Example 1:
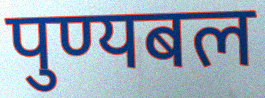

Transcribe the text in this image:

पुण्यबल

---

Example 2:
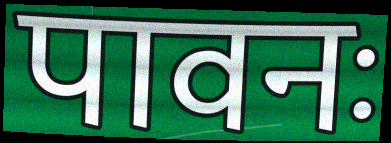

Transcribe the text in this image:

पावनः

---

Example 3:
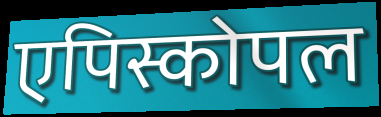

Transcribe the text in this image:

एपिस्कोपल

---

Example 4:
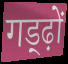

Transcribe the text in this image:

गड्‌ढ़ों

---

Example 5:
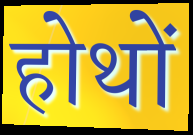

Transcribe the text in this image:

होथों